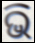
ଭି